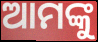
ଆମଙ୍କୁ